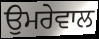
ਉਮਰੇਵਾਲ